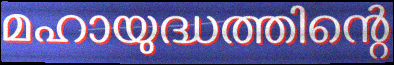
മഹായുദ്ധത്തിന്റെ